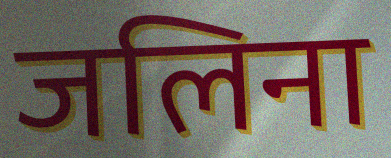
जलिना